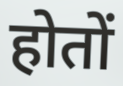
होतों